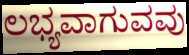
ಲಭ್ಯವಾಗುವವು